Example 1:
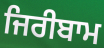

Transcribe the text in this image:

ਜਿਰੀਬਾਮ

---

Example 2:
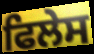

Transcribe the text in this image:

ਫਿਲੇਸ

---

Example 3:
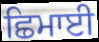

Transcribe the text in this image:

ਛਿਮਾਈ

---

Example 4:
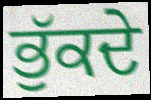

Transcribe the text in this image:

ਭੁੱਕਦੇ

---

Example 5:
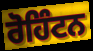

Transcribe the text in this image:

ਰੋਹਿੰਟਨ